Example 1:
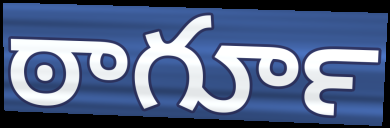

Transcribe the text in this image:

ఠాగూర్‍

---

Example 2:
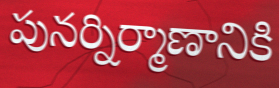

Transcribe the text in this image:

పునర్నిర్మాణానికి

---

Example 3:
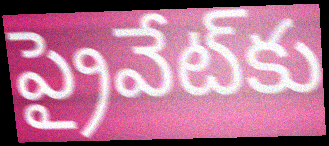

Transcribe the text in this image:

ప్రైవేట్‌కు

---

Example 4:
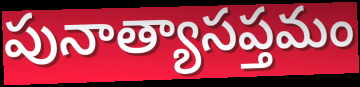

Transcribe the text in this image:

పునాత్యాసప్తమం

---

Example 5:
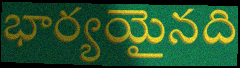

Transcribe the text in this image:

భార్యయైనది